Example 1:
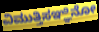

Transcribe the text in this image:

ವಿಮುತ್ತಿಸಞ್ಞಿನೋ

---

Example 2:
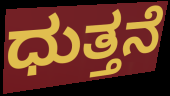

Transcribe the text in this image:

ಧುತ್ತನೆ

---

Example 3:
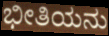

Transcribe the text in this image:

ಭೀತಿಯನು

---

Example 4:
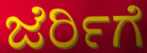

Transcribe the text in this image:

ಜೆರ್ರಿಗೆ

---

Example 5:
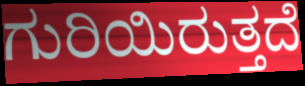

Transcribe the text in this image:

ಗುರಿಯಿರುತ್ತದೆ